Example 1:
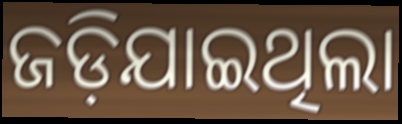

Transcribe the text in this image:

ଜଡ଼ିଯାଇଥିଲା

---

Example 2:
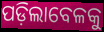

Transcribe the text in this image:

ପଡ଼ିଲାବେଳକୁ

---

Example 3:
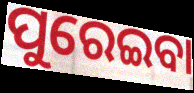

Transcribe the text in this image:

ପୁରେଇବା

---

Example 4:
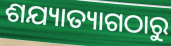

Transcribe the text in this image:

ଶଯ୍ୟାତ୍ୟାଗଠାରୁ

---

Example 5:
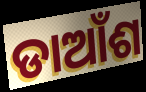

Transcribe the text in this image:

ଡାଆଁଶ